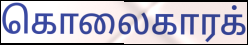
கொலைகாரக்